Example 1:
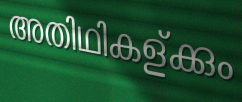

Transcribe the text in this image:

അതിഥികള്ക്കും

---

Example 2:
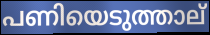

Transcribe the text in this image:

പണിയെടുത്താല്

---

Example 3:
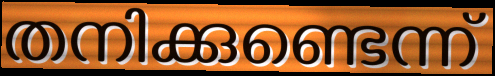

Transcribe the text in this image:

തനിക്കുണ്ടെന്ന്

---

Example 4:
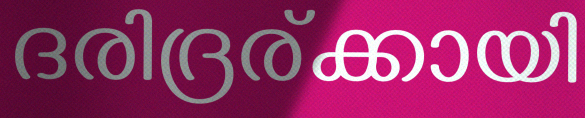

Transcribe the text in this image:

ദരിദ്രര്ക്കായി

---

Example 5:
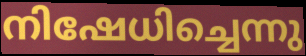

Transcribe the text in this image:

നിഷേധിച്ചെന്നു